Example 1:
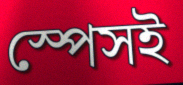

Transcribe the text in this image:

স্পেসই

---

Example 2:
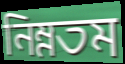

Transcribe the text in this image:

নিম্নতম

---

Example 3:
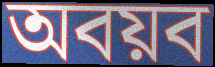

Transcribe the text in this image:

অবয়ব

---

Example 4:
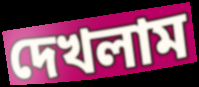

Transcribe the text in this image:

দেখলাম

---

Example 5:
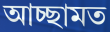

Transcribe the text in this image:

আচ্ছামত